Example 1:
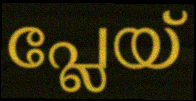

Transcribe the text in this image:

പ്ലേയ്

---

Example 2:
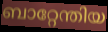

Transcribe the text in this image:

ബാറ്റേന്തിയ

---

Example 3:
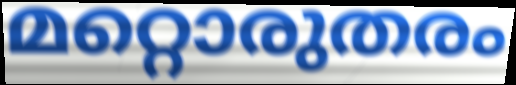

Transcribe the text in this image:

മറ്റൊരുതരം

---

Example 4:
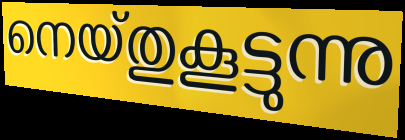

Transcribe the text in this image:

നെയ്തുകൂട്ടുന്നു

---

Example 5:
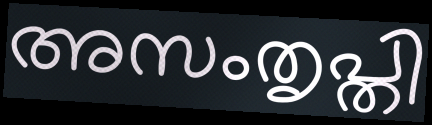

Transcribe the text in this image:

അസംതൃപ്തി